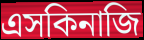
এসকিনাজি